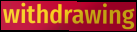
withdrawing